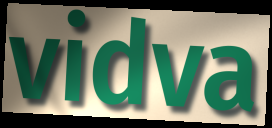
vidva